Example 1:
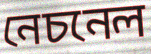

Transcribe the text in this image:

নেচনেল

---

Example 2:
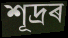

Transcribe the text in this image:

শূদ্ৰৰ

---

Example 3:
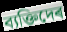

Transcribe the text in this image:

ব্যক্তিদেৰ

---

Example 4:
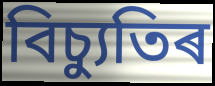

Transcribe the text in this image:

বিচ্যুতিৰ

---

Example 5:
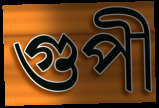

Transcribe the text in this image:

গুপী